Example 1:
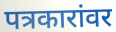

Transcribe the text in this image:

पत्रकारांवर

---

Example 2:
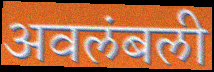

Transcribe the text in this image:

अवलंबली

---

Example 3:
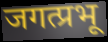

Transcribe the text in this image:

जगत्प्रभू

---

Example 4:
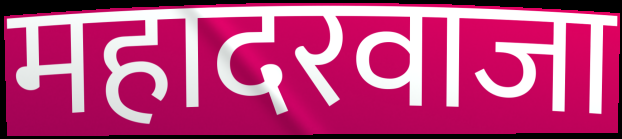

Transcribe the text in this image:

महादरवाजा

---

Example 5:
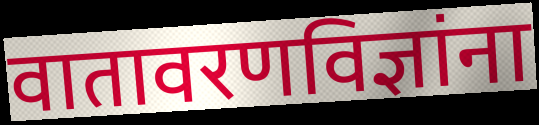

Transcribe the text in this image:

वातावरणविज्ञांना